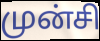
முன்சி